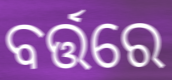
ବର୍ତ୍ତରେ